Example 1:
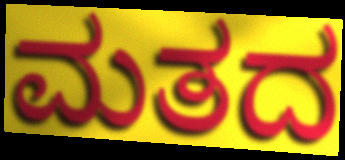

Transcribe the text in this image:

ಮತದ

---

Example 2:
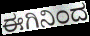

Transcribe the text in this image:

ಈಗಿನಿಂದ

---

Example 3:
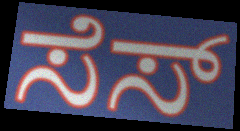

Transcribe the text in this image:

ಸೆಸ್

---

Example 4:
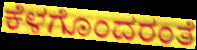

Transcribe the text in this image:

ಕೆಳಗೊಂದರಂತೆ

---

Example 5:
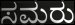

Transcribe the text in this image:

ಸಮರು